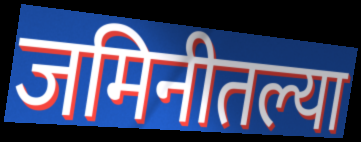
जमिनीतल्या